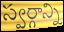
స్వర్గాన్ని